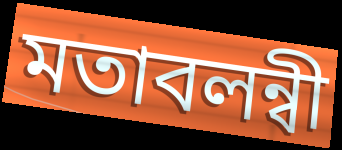
মতাবলন্বী